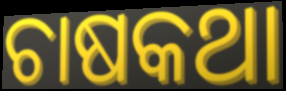
ଚାଷକଥା